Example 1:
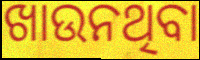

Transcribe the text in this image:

ଖାଉନଥିବା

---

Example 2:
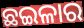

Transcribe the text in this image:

ଛଇଳାର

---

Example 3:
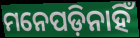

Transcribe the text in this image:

ମନେପଡ଼ିନାହିଁ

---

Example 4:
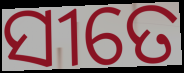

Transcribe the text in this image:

ସୀତେ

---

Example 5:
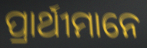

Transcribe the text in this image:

ପ୍ରାର୍ଥୀମାନେ